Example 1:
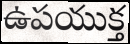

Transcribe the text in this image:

ఉపయుక్త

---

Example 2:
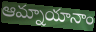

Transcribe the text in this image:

ఆమ్నాయానాం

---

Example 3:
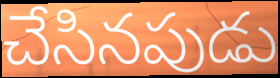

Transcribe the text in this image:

చేసినపుడు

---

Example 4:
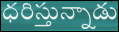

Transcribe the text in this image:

ధరిస్తున్నాడు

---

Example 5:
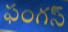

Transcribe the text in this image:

ఫంగస్